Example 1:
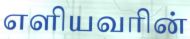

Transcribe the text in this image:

எளியவரின்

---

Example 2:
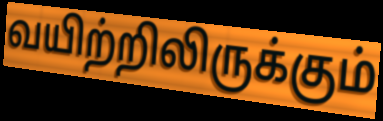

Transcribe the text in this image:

வயிற்றிலிருக்கும்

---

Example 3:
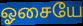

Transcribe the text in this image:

ஓசையே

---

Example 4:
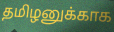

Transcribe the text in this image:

தமிழனுக்காக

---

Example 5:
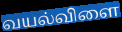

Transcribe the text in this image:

வயல்விளை